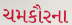
ચમકૌરના